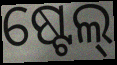
ଷ୍ଟେଲ୍